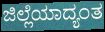
ಜಿಲ್ಲೆಯಾದ್ಯಂತ